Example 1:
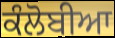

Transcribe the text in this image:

ਕੰਲੋਬੀਆ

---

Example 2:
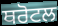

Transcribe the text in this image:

ਥਰੋਟਲ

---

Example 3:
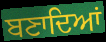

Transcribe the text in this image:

ਬਣਾਦਿਆਂ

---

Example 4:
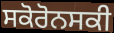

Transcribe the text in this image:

ਸਕੋਰੋਨਸਕੀ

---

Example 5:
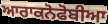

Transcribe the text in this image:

ਆਰਾਕਨੋਫੋਬੀਆ